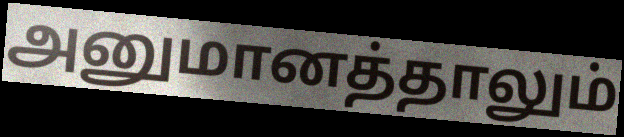
அனுமானத்தாலும்